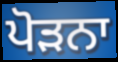
ਪੋੜਨਾ